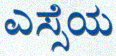
ಎಸ್ಸೆಯ